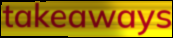
takeaways